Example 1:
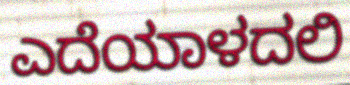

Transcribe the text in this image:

ಎದೆಯಾಳದಲಿ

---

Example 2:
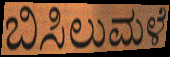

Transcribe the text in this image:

ಬಿಸಿಲುಮಳೆ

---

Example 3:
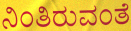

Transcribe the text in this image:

ನಿಂತಿರುವಂತೆ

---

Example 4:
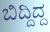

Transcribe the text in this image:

ಬಿದ್ದಿದ್ದ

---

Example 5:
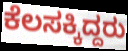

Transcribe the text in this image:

ಕೆಲಸಕ್ಕಿದ್ದರು